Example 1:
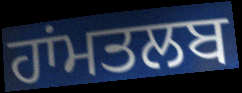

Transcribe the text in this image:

ਹਾਂਮਤਲਬ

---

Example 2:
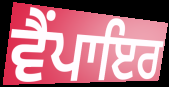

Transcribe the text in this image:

ਵੈਂਪਾਇਰ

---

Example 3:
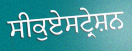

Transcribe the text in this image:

ਸੀਕੁਏਸਟ੍ਰੇਸ਼ਨ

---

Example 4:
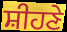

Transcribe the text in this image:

ਸ਼ੀਹਣੇ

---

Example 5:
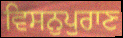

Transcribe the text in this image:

ਵਿਸਨੁਪੁਰਾਣ